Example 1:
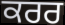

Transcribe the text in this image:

ਕਰਰ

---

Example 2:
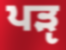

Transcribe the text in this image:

ਪੜੵ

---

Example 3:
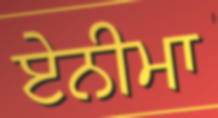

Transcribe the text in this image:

ਏਨੀਮਾ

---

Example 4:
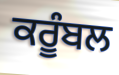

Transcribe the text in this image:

ਕਰੂੰਬਲ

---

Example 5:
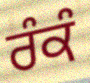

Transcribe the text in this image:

ਰੰਕੰ